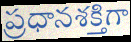
ప్రధానశక్తిగా